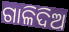
ଗାଳିଦିଅ